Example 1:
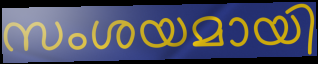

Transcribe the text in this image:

സംശയമായി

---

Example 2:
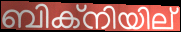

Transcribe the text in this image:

ബിക്നിയില്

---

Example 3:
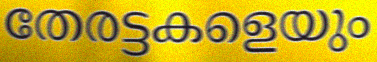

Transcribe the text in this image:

തേരട്ടകളെയും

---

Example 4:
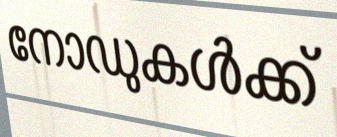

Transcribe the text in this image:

നോഡുകൾക്ക്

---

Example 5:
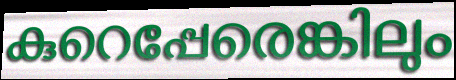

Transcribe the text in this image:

കുറെപ്പേരെങ്കിലും